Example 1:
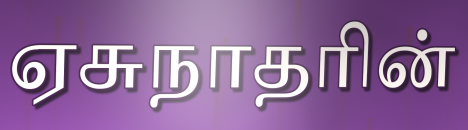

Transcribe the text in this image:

ஏசுநாதரின்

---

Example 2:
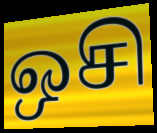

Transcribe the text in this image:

ஒசி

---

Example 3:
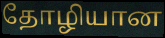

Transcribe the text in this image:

தோழியான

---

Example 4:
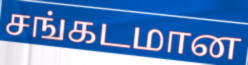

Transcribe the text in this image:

சங்கடமான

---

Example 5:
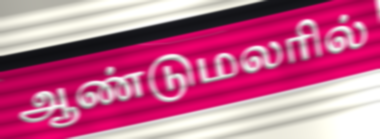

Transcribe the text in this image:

ஆண்டுமலரில்